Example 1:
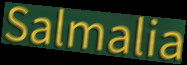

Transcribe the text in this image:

Salmalia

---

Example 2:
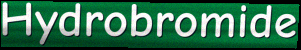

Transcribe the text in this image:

Hydrobromide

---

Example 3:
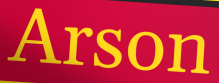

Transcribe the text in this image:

Arson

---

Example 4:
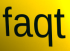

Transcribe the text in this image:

faqt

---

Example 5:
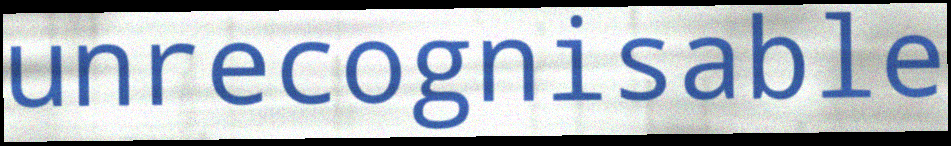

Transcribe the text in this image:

unrecognisable